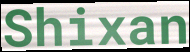
Shixan